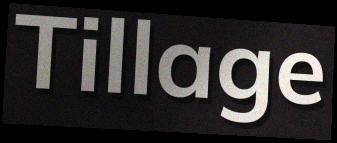
Tillage